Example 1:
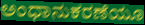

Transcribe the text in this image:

ಅಂಧಾನುಕರಣೆಯೂ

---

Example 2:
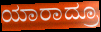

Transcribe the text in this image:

ಯಾರಾದ್ರೂ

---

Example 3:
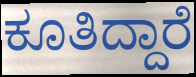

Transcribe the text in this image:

ಕೂತಿದ್ದಾರೆ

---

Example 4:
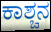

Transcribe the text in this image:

ಕಾಶ್ಚನ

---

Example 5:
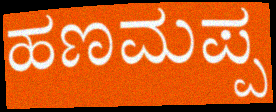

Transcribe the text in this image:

ಹಣಮಪ್ಪ